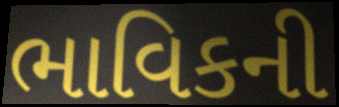
ભાવિકની